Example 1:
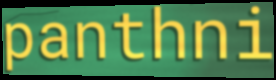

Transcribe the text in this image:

panthni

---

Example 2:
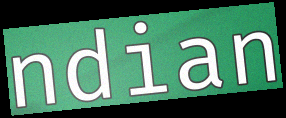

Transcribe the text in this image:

ndian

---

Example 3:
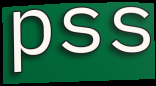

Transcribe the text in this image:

pss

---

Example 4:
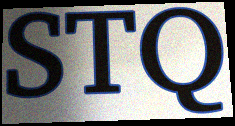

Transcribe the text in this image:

STQ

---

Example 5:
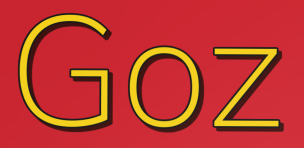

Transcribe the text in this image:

Goz